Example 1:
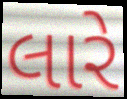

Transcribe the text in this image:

લારે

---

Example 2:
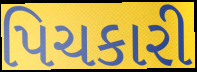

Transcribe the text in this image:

પિચકારી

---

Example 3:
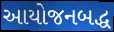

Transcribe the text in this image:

આયોજનબદ્ધ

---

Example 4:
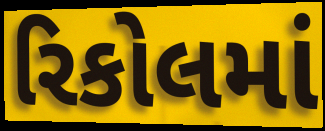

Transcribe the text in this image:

રિકોલમાં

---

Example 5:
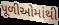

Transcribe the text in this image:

પૂળીઓમાંથી